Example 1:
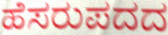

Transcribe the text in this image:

ಹೆಸರುಪದದ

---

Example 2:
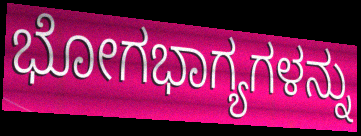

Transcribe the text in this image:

ಭೋಗಭಾಗ್ಯಗಳನ್ನು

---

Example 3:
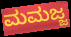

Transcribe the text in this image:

ಮಮಜ್ಜ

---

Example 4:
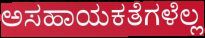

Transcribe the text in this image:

ಅಸಹಾಯಕತೆಗಳೆಲ್ಲ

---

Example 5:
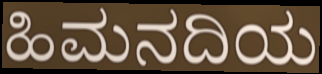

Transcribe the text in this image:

ಹಿಮನದಿಯ